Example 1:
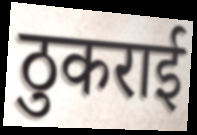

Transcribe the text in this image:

ठुकराई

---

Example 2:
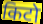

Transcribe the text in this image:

किटो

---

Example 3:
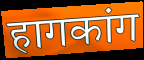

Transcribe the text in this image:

हागकांग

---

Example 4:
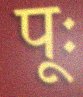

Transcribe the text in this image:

पूः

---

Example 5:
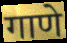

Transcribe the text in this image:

गाणे